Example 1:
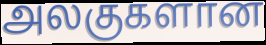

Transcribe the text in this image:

அலகுகளான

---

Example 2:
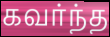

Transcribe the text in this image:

கவர்ந்த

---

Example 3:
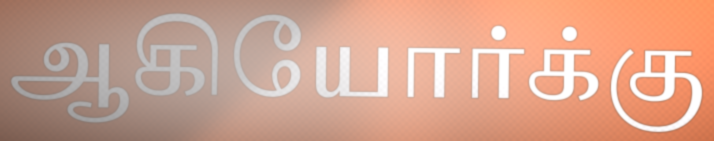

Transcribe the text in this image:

ஆகியோர்க்கு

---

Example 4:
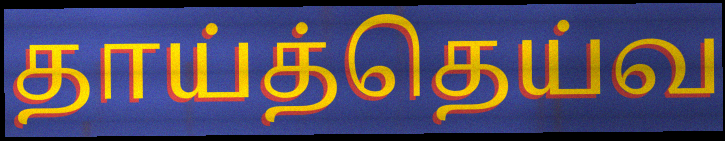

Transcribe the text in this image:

தாய்த்தெய்வ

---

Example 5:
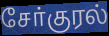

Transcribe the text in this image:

சேர்குரல்